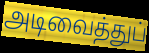
அடிவைத்துப்